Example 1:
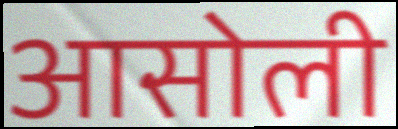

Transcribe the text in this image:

आसोली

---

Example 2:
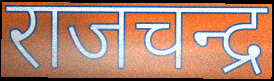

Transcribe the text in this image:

राजचन्द्र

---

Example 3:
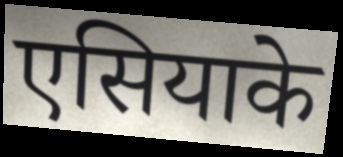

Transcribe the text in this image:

एसियाके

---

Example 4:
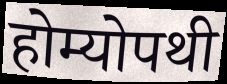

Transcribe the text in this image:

होम्योपथी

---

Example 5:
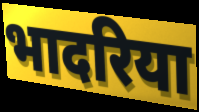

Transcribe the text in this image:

भादरिया